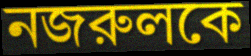
নজরুলকে